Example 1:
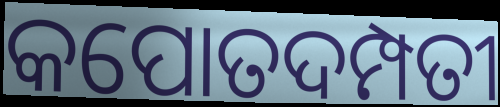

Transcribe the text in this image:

କପୋତଦମ୍ପତୀ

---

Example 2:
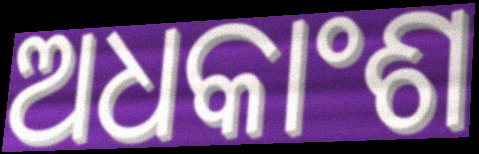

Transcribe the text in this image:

ଅଧକାଂଶ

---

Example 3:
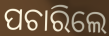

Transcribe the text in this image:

ପଚାରିଲେ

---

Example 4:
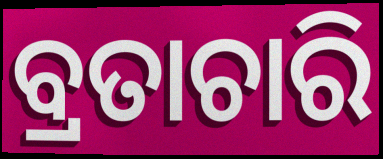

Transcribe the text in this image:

ବ୍ରତାଚାରି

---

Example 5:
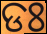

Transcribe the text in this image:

ଡଃ